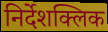
निर्देशक्लिक